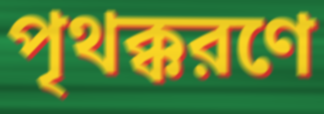
পৃথক্করণে